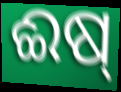
ଈଷ୍